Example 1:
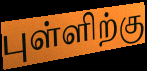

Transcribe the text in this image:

புள்ளிற்கு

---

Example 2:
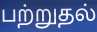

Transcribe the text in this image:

பற்றுதல்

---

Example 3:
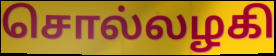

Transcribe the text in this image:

சொல்லழகி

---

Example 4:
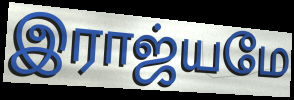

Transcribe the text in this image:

இராஜ்யமே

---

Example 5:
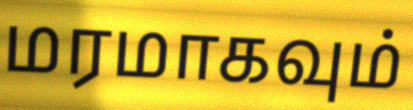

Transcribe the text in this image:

மரமாகவும்